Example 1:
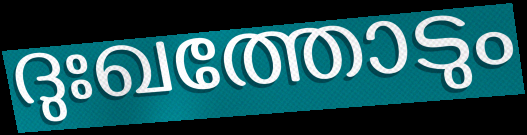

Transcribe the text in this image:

ദുഃഖത്തോടും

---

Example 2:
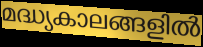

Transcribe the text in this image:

മദ്ധ്യകാലങ്ങളിൽ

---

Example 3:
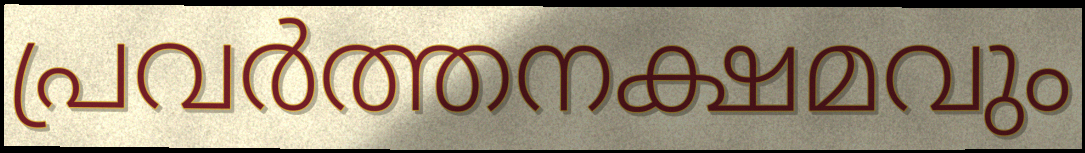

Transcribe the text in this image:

പ്രവർത്തനക്ഷമവും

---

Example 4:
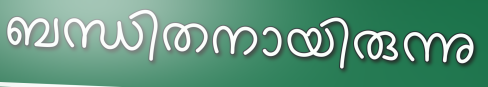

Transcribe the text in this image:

ബന്ധിതനായിരുന്നു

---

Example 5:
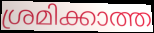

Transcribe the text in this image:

ശ്രമിക്കാത്ത